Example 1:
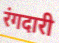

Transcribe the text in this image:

रंगदारी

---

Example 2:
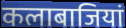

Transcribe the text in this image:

कलाबाजियां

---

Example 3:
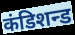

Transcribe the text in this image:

कंडिशन्ड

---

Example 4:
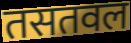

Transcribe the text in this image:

तसतवल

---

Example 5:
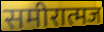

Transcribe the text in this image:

समीरात्मज